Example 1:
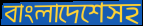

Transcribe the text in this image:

বাংলাদেশেসহ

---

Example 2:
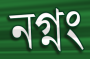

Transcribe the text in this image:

নগ্নং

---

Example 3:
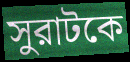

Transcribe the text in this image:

সুরাটকে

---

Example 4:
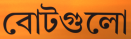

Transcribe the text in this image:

বোটগুলো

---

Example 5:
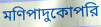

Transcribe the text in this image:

মণিপাদুকোপরি